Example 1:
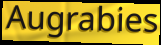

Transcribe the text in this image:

Augrabies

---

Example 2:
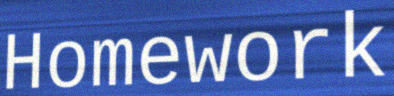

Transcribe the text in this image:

Homework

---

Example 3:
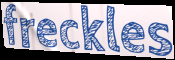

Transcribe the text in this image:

freckles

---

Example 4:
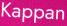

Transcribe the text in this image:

Kappan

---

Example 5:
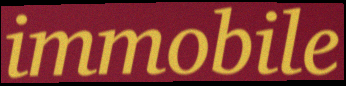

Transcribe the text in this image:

immobile